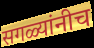
सगळ्यांनीच